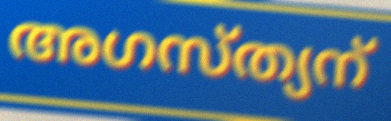
അഗസ്ത്യന്